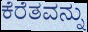
ಕೆರೆತವನ್ನು